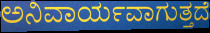
ಅನಿವಾರ್ಯವಾಗುತ್ತದೆ